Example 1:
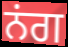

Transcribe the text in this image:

ਨਂਗ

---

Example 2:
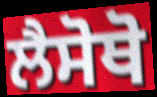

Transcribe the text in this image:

ਲੈਸੋਥੋ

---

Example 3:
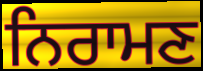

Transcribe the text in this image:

ਨਿਰਾਮਣ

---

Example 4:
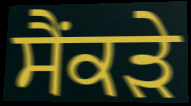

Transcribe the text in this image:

ਸੈਂਕੜੇ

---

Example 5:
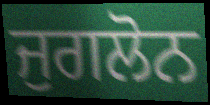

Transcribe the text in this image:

ਜੁਗਲੋਨ